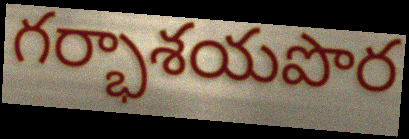
గర్భాశయపొర